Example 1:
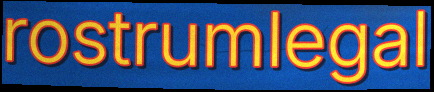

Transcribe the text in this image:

rostrumlegal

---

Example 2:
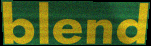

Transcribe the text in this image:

blend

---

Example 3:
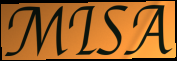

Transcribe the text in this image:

MISA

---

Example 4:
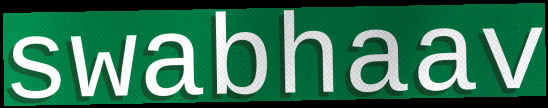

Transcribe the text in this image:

swabhaav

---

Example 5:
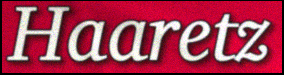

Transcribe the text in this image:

Haaretz